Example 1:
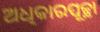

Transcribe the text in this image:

ଅଧିକାରପୂଚ୍ଛା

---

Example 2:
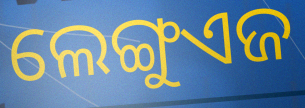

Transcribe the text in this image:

ଲେଙ୍ଗୁଏଜ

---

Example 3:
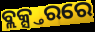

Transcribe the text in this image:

ବ୍ଲକ୍ସ୍ତରରେ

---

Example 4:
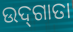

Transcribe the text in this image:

ଉଦ୍‌ଗାତା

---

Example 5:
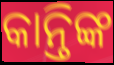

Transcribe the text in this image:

କାନ୍ତିଙ୍କ